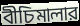
বীচিমালার